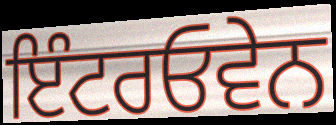
ਇੰਟਰਓਵੇਨ